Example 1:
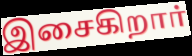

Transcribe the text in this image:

இசைகிறார்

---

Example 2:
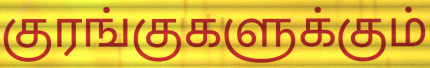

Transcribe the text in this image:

குரங்குகளுக்கும்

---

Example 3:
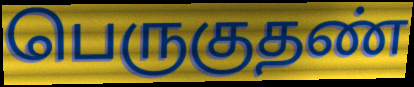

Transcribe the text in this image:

பெருகுதண்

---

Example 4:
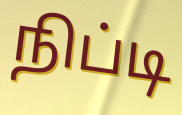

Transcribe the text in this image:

நிப்டி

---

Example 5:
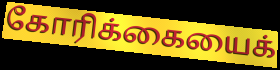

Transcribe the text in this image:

கோரிக்கையைக்